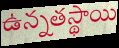
ఉన్నతస్థాయి